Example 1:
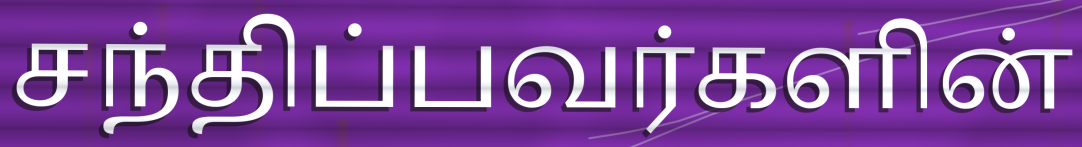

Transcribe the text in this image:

சந்திப்பவர்களின்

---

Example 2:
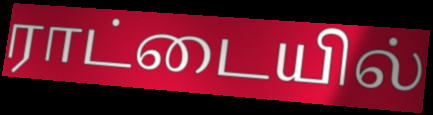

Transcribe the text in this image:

ராட்டையில்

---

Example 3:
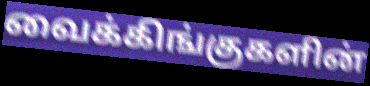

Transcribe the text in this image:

வைக்கிங்குகளின்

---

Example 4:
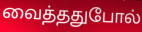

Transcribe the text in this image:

வைத்ததுபோல்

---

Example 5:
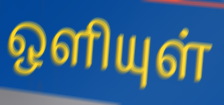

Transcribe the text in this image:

ஒளியுள்